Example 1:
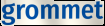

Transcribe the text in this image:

grommet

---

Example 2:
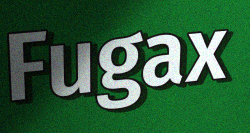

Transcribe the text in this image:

Fugax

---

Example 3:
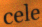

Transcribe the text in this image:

cele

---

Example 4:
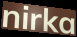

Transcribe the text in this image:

nirka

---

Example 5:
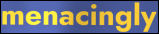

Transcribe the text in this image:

menacingly